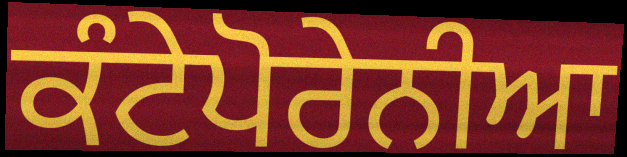
ਕੰਟੇਪੋਰੇਨੀਆ